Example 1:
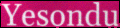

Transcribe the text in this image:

Yesondu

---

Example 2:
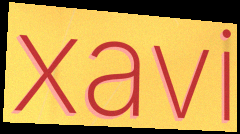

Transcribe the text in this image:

xavi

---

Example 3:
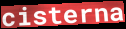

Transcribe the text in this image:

cisterna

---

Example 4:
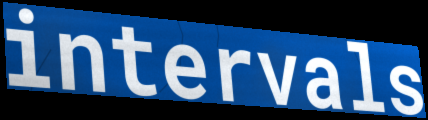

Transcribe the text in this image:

intervals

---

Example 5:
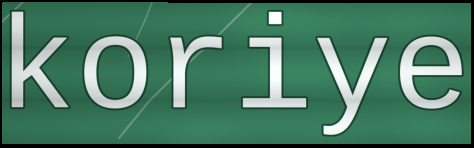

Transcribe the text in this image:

koriye